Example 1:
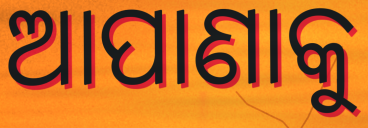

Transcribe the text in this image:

ଆପାଣାକୁ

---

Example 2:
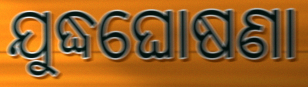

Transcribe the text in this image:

ଯୁଦ୍ଧଘୋଷଣା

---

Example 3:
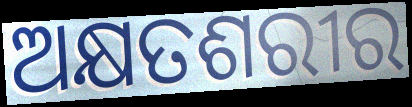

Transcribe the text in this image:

ଅକ୍ଷତଶରୀର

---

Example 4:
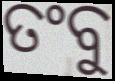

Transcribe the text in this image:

ତଂବୁ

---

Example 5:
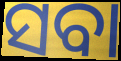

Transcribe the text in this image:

ସବା